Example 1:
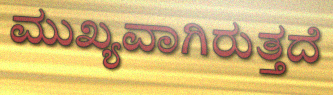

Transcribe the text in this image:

ಮುಖ್ಯವಾಗಿರುತ್ತದೆ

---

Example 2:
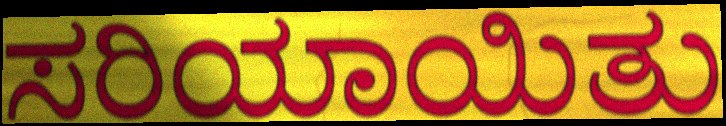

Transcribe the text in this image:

ಸರಿಯಾಯಿತು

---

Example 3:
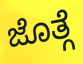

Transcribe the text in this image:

ಜೊತ್ಗೆ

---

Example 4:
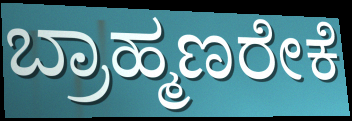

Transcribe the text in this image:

ಬ್ರಾಹ್ಮಣರೇಕೆ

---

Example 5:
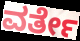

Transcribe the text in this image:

ವರ್ತೇ